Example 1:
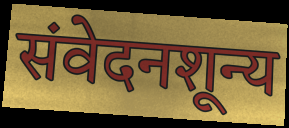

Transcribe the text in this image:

संवेदनशून्य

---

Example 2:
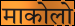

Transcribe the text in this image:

माकोलो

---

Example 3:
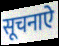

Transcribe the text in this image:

सूचनाऐ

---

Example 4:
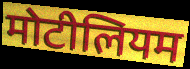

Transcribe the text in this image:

मोटीलियम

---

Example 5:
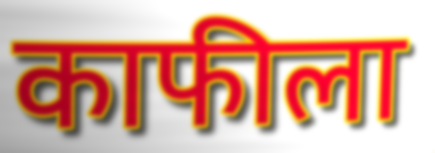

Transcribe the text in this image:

काफीला